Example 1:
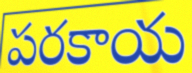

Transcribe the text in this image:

పరకాయ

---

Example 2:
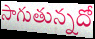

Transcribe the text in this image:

సాగుతున్నదో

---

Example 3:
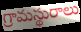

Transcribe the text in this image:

గ్రామస్థురాలు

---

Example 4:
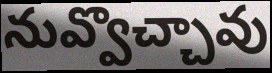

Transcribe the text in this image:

నువ్వొచ్చావు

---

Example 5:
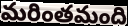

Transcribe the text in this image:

మరింతమంది